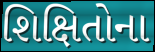
શિક્ષિતોના